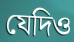
যেদিও